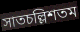
সাতচল্লিশতম